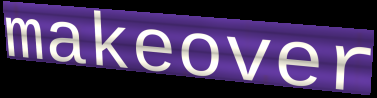
makeover